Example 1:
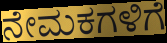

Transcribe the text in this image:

ನೇಮಕಗಳಿಗೆ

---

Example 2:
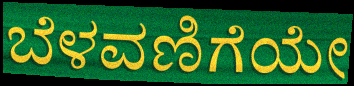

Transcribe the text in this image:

ಬೆಳವಣಿಗೆಯೇ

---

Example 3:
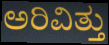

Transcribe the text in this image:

ಅರಿವಿತ್ತು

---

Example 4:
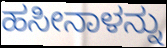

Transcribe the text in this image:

ಹಸೀನಾಳನ್ನು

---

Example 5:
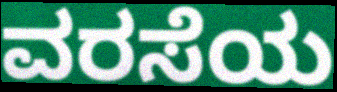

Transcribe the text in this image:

ವರಸೆಯ